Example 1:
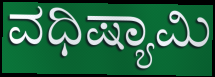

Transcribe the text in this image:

ವಧಿಷ್ಯಾಮಿ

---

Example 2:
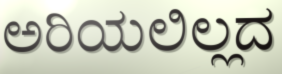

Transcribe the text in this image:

ಅರಿಯಲಿಲ್ಲದ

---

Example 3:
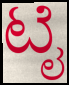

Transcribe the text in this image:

ಟೈ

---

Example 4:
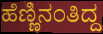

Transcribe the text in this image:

ಹೆಣ್ಣಿನಂತಿದ್ದ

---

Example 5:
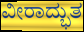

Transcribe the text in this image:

ವೀರಾದ್ಭುತ